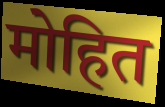
मोहित